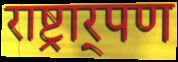
राष्ट्रार्पण